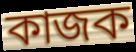
কাজক